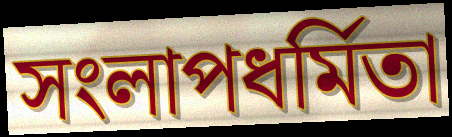
সংলাপধর্মিতা